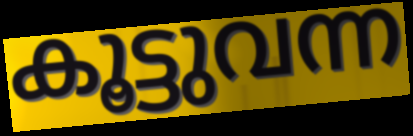
കൂട്ടുവന്ന